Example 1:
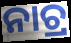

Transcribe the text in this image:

ନାଚ୍ର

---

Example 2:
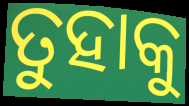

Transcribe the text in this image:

ତୁହାକୁ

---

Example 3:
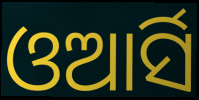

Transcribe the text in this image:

ଓଆର୍ସି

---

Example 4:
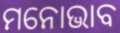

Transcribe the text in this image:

ମନୋଭାବ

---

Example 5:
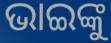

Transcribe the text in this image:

ଭାଇଙ୍କୁ